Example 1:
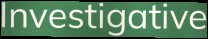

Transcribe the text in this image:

Investigative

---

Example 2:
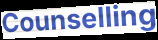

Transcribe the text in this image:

Counselling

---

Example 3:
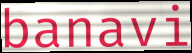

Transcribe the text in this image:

banavi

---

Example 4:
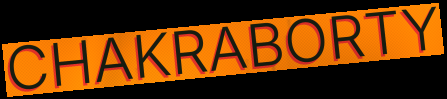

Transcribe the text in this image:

CHAKRABORTY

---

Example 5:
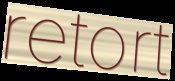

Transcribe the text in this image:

retort